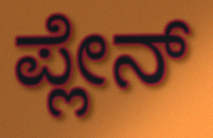
ಪ್ಲೇನ್